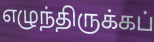
எழுந்திருக்கப்